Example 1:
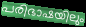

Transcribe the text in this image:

പരിഭാഷയിലും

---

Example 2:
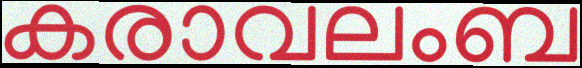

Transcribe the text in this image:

കരാവലംബ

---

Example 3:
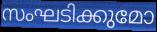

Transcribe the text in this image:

സംഘടിക്കുമോ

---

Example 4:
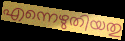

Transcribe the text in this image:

എന്നെഴുതിയതു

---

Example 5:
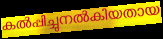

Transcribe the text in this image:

കൽപ്പിച്ചുനൽകിയതായ